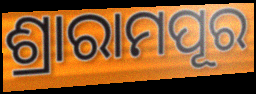
ଶ୍ରାରାମପୂର